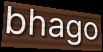
bhago